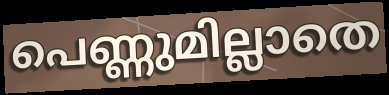
പെണ്ണുമില്ലാതെ